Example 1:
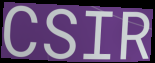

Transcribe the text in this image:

CSIR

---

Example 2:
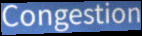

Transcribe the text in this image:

Congestion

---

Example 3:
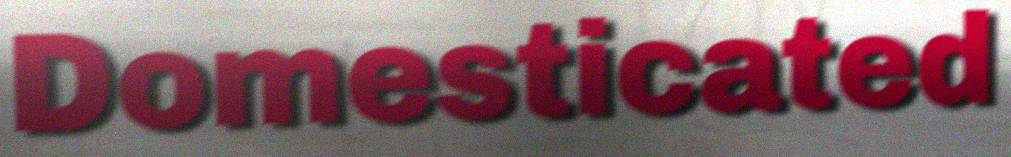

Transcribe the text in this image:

Domesticated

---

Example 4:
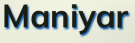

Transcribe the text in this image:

Maniyar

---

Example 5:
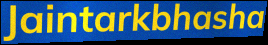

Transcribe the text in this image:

Jaintarkbhasha